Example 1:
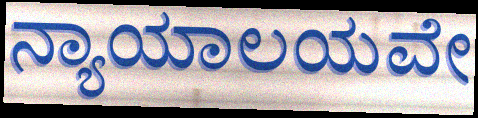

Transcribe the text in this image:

ನ್ಯಾಯಾಲಯವೇ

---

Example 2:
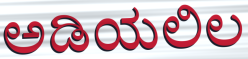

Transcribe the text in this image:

ಅಡಿಯಲಿಲ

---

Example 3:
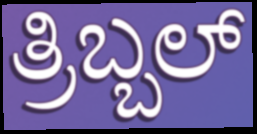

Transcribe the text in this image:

ತ್ರಿಬ್ಬಲ್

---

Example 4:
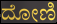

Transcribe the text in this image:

ದೋಣಿ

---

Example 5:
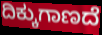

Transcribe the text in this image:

ದಿಕ್ಕುಗಾಣದೆ